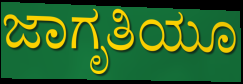
ಜಾಗೃತಿಯೂ